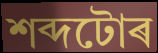
শব্দটোৰ